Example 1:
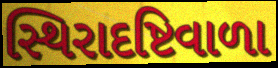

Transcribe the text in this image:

સ્થિરાદષ્ટિવાળા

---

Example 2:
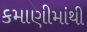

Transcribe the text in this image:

કમાણીમાંથી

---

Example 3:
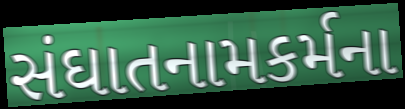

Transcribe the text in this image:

સંઘાતનામકર્મના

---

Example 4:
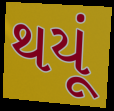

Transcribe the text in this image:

થયૂં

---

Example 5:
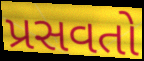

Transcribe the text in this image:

પ્રસવતો